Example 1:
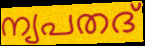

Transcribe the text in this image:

ന്യപതദ്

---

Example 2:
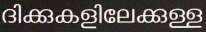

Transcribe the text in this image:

ദിക്കുകളിലേക്കുള്ള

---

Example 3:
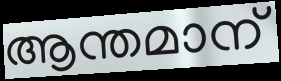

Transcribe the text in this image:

ആന്തമാന്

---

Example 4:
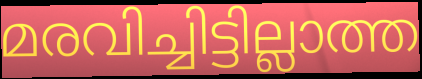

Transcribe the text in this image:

മരവിച്ചിട്ടില്ലാത്ത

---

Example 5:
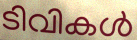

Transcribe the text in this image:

ടിവികൾ